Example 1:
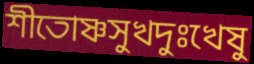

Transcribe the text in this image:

শীতোষ্ণসুখদুঃখেষু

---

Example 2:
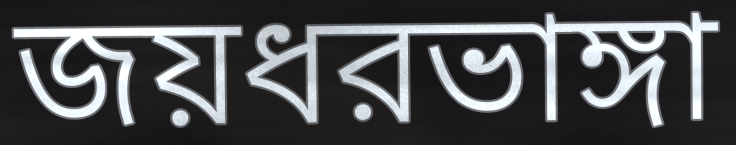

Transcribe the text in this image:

জয়ধরভাঙ্গা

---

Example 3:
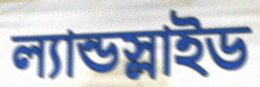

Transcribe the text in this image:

ল্যান্ডস্লাইড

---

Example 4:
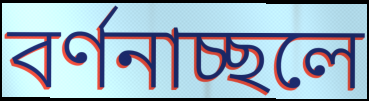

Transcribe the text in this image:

বর্ণনাচ্ছলে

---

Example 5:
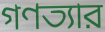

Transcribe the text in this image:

গণত্যার